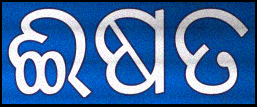
ଈଷତ